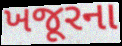
ખજૂરના